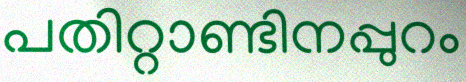
പതിറ്റാണ്ടിനപ്പുറം